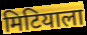
मिटियाला